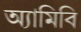
অ্যামিবি